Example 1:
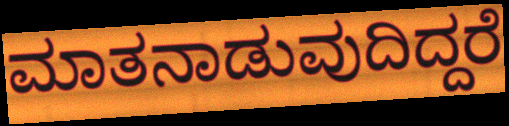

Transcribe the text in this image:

ಮಾತನಾಡುವುದಿದ್ದರೆ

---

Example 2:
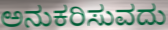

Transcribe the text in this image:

ಅನುಕರಿಸುವದು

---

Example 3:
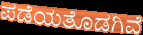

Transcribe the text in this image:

ಪಡೆಯತೊಡಗಿವೆ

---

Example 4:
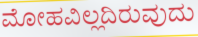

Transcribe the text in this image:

ಮೋಹವಿಲ್ಲದಿರುವುದು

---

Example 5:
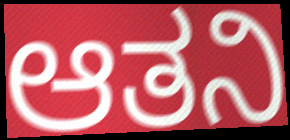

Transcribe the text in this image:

ಆತನಿ